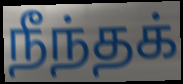
நீந்தக்